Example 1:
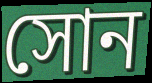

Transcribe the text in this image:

সোন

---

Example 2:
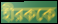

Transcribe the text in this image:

হীরককে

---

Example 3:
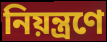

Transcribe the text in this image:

নিয়ন্ত্রণে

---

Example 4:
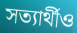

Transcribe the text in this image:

সত্যার্থীও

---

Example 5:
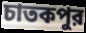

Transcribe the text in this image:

চাতকপুর